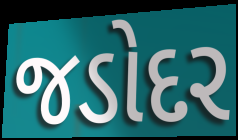
જડોદર